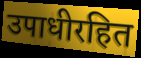
उपाधीरहित